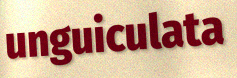
unguiculata